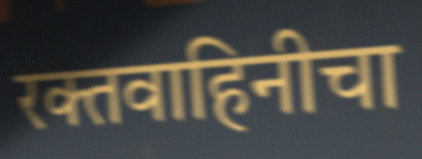
रक्तवाहिनीचा